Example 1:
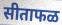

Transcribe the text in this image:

सीताफळ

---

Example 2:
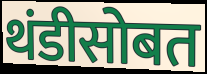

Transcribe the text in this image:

थंडीसोबत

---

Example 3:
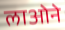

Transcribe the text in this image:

लाओने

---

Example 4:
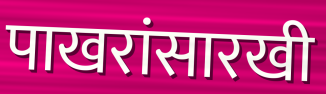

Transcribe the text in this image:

पाखरांसारखी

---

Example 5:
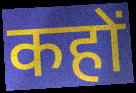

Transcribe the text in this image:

कहों